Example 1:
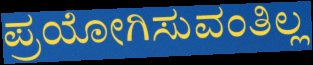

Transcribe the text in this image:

ಪ್ರಯೋಗಿಸುವಂತಿಲ್ಲ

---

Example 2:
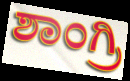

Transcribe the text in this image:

ಶಾಂಗ್ರಿ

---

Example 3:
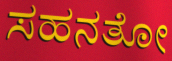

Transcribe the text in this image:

ಸಹನತೋ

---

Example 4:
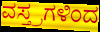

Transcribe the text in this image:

ವಸ್ತ್ರಗಳಿಂದ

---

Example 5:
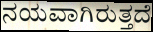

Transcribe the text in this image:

ನಯವಾಗಿರುತ್ತದೆ